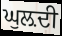
ਘੁਲ਼ਦੀ